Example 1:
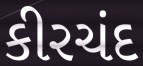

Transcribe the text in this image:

કીરચંદ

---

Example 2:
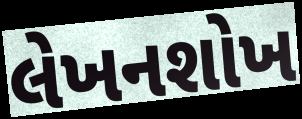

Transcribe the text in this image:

લેખનશોખ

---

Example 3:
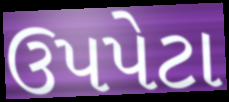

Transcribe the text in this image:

ઉપપેટા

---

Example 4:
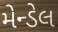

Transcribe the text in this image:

મેન્ડેલ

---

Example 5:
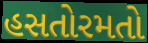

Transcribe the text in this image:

હસતોરમતો